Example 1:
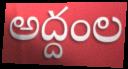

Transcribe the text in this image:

అద్దంల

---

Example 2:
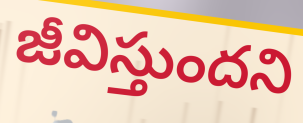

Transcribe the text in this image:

జీవిస్తుందని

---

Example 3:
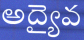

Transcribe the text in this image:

అద్యైవ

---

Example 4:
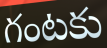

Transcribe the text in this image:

గంటకు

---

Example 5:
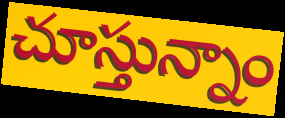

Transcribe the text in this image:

చూస్తున్నాం